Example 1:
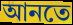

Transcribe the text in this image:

আনতে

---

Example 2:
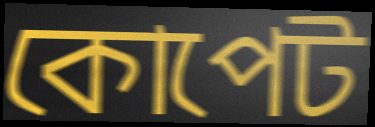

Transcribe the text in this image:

কোপেট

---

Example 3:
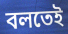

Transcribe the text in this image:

বলতেই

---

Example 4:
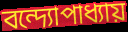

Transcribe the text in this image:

বন্দ্যোপাধ্যায়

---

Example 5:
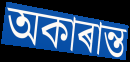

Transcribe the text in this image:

অকাৰান্ত